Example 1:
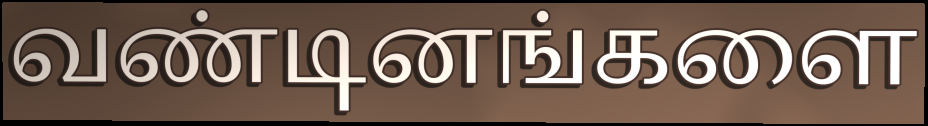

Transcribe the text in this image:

வண்டினங்களை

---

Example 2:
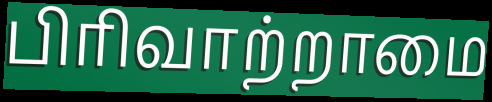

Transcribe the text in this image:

பிரிவாற்றாமை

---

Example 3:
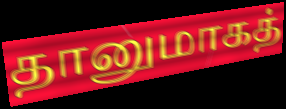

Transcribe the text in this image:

தானுமாகத்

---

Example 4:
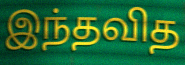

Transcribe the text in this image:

இந்தவித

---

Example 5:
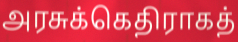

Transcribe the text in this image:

அரசுக்கெதிராகத்